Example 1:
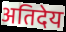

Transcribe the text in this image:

अतिदेय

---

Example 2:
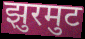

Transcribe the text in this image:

झुरमुट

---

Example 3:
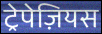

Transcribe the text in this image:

ट्रेपेज़ियस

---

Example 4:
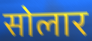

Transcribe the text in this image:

सोलार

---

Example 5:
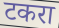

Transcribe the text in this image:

टकरा